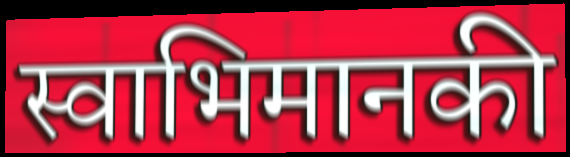
स्वाभिमानकी